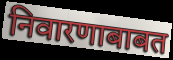
निवारणाबाबत